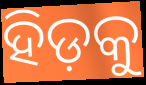
ହିଡ଼କୁ